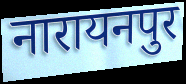
नारायनपुर